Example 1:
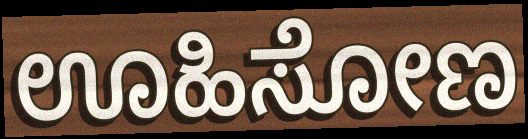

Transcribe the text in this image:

ಊಹಿಸೋಣ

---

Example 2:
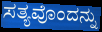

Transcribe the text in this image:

ಸತ್ಯವೊಂದನ್ನು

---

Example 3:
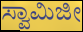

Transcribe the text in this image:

ಸ್ವಾಮಿಜೀ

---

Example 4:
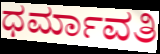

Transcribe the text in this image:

ಧರ್ಮಾವತಿ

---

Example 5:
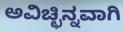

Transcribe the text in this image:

ಅವಿಚ್ಛಿನ್ನವಾಗಿ